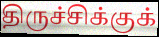
திருச்சிக்குக்